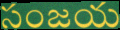
సంజయ